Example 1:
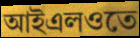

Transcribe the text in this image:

আইএলওতে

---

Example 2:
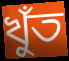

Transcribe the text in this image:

খুঁত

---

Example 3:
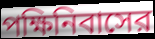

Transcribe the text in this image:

পক্ষিনিবাসের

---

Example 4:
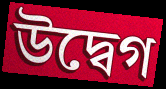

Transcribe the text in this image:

উদ্বেগ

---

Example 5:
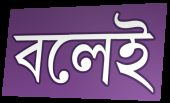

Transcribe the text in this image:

বলেই